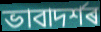
ভাবাদৰ্শৰ